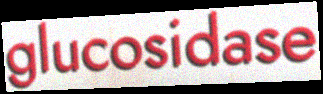
glucosidase